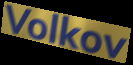
Volkov